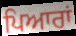
ਪਿਆਰਾਂ